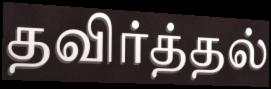
தவிர்த்தல்